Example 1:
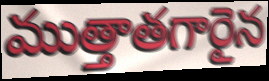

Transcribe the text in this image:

ముత్తాతగారైన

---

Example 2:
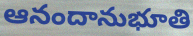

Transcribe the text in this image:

ఆనందానుభూతి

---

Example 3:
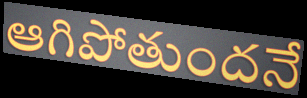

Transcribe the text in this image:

ఆగిపోతుందనే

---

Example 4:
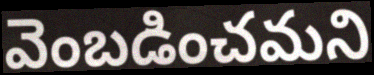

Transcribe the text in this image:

వెంబడించమని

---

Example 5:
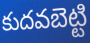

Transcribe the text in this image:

కుదవబెట్టి